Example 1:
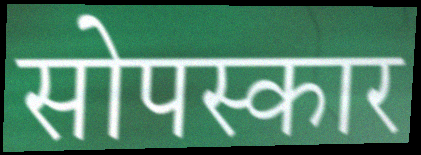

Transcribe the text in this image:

सोपस्कार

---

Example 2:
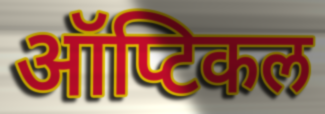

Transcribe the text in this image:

ऑप्टिकल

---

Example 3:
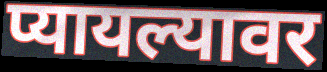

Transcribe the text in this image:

प्यायल्यावर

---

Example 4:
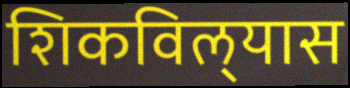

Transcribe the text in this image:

शिकविल्यास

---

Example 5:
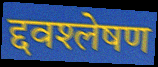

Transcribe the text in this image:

द्दवश्लेषण